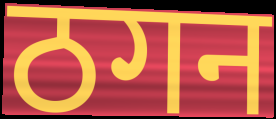
ठगन